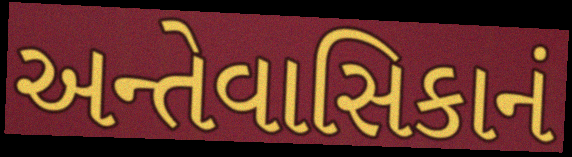
અન્તેવાસિકાનં